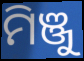
ମିଞ୍ଜୁ